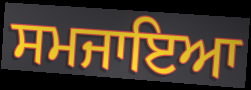
ਸਮਜਾਇਆ